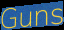
Guns